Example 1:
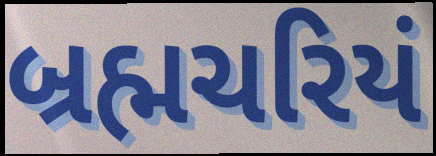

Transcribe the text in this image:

બ્રહ્મચરિયં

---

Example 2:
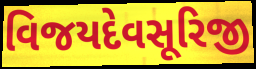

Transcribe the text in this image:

વિજયદેવસૂરિજી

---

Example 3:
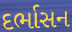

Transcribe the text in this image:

દર્ભાસન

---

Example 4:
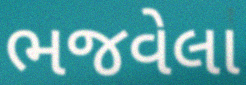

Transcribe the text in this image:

ભજવેલા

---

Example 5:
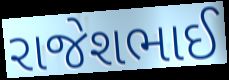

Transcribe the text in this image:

રાજેશભાઈ